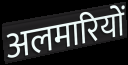
अलमारियों